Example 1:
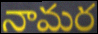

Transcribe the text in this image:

నామర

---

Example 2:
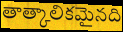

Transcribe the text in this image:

తాత్కాలికమైనది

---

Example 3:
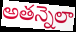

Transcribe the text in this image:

అతన్నెలా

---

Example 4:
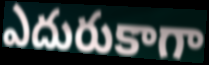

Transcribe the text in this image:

ఎదురుకాగా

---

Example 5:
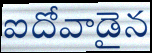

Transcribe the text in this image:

ఐదోవాడైన